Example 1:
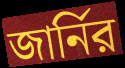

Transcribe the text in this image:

জার্নির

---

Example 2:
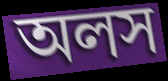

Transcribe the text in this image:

অলস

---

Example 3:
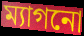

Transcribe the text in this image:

ম্যাগনো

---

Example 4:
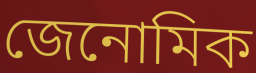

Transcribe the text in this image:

জেনোমিক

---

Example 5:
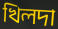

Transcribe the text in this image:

খিলদা